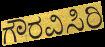
ಗೌರವಿಸಿರಿ